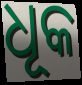
ଧୂକ